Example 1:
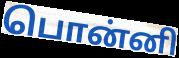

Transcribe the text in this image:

பொன்னி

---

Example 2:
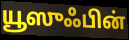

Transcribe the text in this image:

யூஸுஃபின்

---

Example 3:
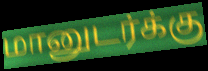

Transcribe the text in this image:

மானுடர்க்கு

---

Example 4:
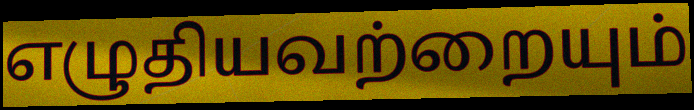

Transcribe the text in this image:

எழுதியவற்றையும்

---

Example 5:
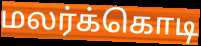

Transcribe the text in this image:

மலர்க்கொடி